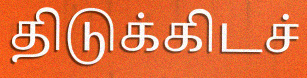
திடுக்கிடச்